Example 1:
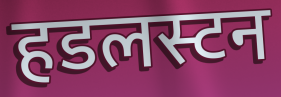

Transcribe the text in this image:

हडलस्टन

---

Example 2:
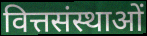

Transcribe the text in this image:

वित्तसंस्थाओं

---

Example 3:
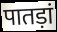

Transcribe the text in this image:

पातड़ां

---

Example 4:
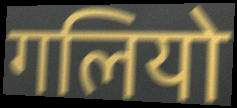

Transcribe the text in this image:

गलियो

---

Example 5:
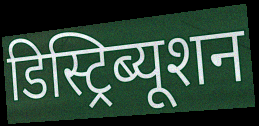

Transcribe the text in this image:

डिस्ट्रिब्यूशन